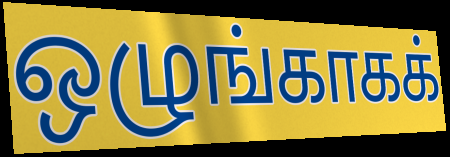
ஒழுங்காகக்